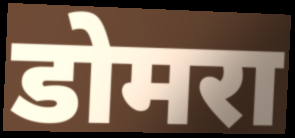
डोमरा